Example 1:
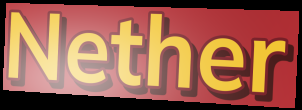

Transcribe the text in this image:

Nether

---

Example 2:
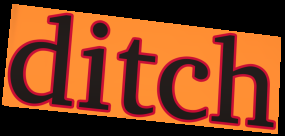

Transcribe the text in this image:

ditch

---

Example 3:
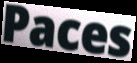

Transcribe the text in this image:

Paces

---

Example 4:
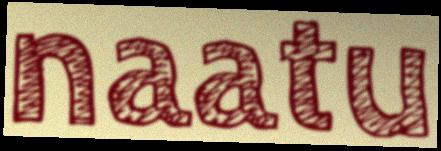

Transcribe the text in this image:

naatu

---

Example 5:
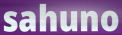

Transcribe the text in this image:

sahuno